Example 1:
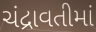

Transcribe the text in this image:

ચંદ્રાવતીમાં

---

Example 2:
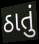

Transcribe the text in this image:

ઠાતું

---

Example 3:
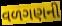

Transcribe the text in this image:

વળગણની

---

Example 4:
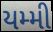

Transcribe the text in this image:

યમ્મી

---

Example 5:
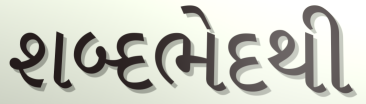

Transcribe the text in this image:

શબ્દભેદથી